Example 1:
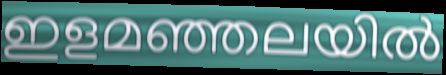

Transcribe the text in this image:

ഇളമഞ്ഞലയിൽ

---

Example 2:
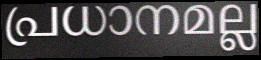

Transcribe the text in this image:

പ്രധാനമല്ല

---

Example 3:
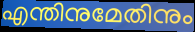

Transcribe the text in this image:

എന്തിനുമേതിനും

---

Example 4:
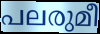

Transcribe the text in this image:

പലരുമീ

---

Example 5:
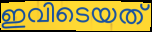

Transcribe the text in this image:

ഇവിടെയത്